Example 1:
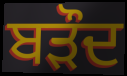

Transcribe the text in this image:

ਬੜੌਦ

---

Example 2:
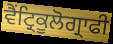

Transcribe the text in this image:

ਵੈਂਟ੍ਰਿਕੂਲੋਗ੍ਰਾਫੀ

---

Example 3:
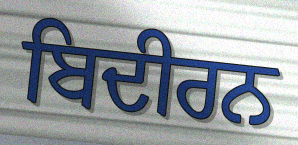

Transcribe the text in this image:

ਬਿਦੀਰਨ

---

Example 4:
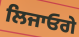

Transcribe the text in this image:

ਲਿਜਾਓਗੇ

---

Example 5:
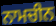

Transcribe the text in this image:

ਨਾਮਚੀਨ